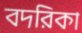
বদরিকা